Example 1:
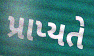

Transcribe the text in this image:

પ્રાપ્યતે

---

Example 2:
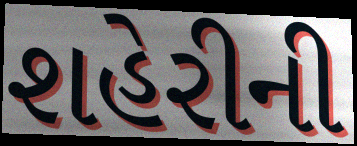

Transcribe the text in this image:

શહેરીની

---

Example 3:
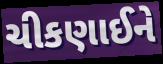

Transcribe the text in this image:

ચીકણાઈને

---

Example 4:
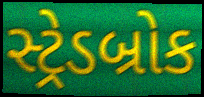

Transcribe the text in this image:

સ્ટ્રેડબ્રોક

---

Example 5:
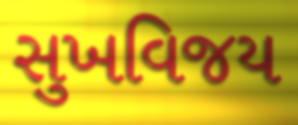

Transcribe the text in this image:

સુખવિજય